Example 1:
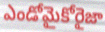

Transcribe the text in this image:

ఎండోమైకోరైజా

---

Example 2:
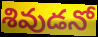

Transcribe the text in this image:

శివుడనో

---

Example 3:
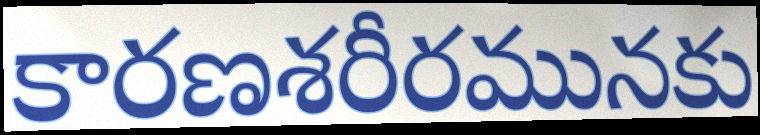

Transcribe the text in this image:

కారణశరీరమునకు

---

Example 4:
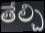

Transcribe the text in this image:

తేల్చి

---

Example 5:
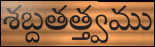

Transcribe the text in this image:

శబ్దతత్త్వము